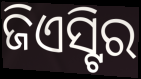
ଜିଏସ୍ଟିର